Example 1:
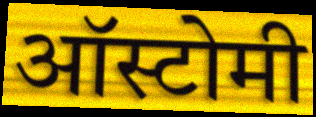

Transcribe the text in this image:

ऑस्टोमी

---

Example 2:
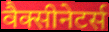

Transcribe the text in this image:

वैक्सीनेटर्स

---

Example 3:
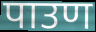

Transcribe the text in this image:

पाउण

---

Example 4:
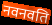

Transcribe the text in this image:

नवनवति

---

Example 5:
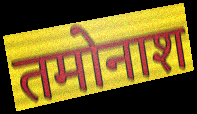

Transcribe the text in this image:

तमोनाश